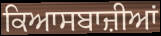
ਕਿਆਸਬਾਜ਼ੀਆਂ